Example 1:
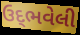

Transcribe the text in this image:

ઉદ્‌ભવેલી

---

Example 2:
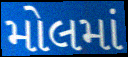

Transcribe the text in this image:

મોલમાં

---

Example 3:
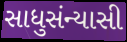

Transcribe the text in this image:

સાધુસંન્યાસી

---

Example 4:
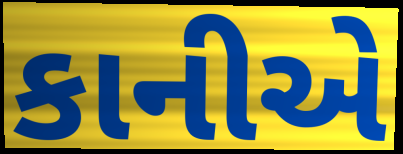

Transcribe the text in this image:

કાનીએ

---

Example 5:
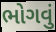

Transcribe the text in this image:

ભોગવું